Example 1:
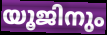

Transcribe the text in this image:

യൂജിനും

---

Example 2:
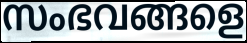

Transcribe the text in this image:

സംഭവങ്ങളെ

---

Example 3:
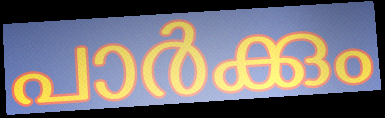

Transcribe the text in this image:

പാർക്കും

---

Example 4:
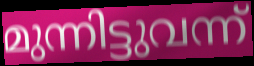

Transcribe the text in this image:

മുന്നിട്ടുവന്ന്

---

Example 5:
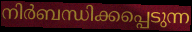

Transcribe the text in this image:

നിർബന്ധിക്കപ്പെടുന്ന